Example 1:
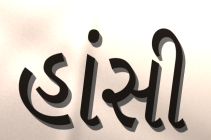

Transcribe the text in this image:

હાંસી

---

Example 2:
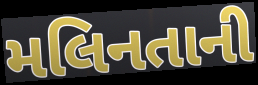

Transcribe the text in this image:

મલિનતાની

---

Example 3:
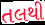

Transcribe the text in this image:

તલથી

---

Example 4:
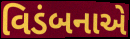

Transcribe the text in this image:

વિડંબનાએ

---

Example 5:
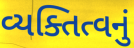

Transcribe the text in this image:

વ્યક્તિત્વનું